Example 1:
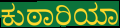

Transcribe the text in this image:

ಕುಠಾರಿಯಾ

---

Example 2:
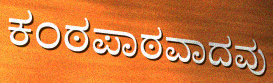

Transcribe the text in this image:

ಕಂಠಪಾಠವಾದವು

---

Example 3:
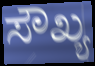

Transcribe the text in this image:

ಸೌಖ್ಯ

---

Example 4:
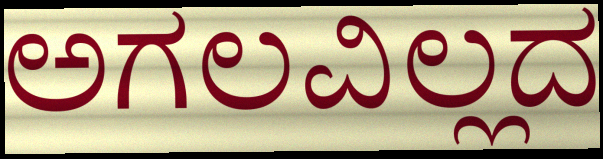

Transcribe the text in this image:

ಅಗಲವಿಲ್ಲದ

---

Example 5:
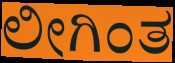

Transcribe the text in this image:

ಲೀಗಿಂತ